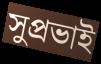
সুপ্রভাই